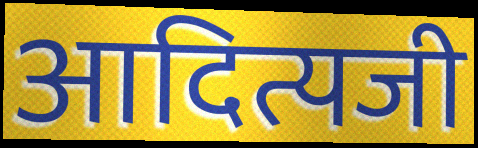
आदित्यजी